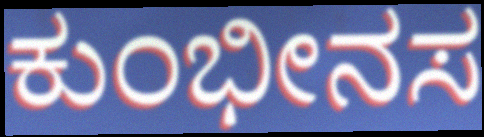
ಕುಂಭೀನಸ